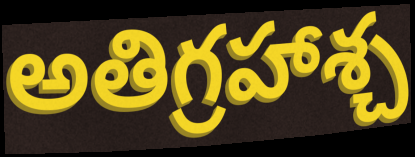
అతిగ్రహాశ్చ